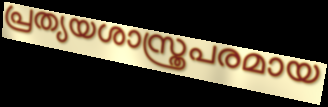
പ്രത്യയശാസ്ത്രപരമായ